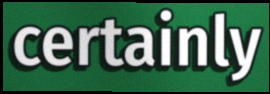
certainly